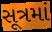
સૂત્રમાં